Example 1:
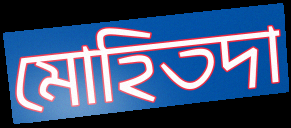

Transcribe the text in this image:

মোহিতদা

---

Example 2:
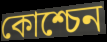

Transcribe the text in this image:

কোশ্চেন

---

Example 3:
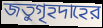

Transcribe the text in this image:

জতুগৃহদাহের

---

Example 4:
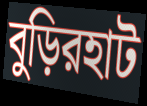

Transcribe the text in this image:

বুড়িরহাট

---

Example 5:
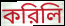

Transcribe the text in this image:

করিলি